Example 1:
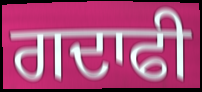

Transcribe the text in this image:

ਗਦਾਫੀ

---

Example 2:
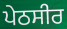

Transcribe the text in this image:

ਪੇਠਸੀਰ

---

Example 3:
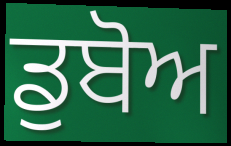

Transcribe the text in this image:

ਡੁਬੋਅ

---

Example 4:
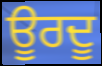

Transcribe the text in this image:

ਊਰਦੂ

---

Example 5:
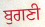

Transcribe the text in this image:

ਬੁਗਣੀ